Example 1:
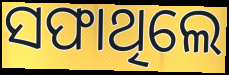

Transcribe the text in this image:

ସଫାଥିଲେ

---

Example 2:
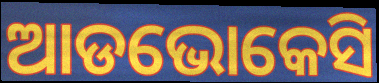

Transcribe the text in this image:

ଆଡଭୋକେସି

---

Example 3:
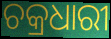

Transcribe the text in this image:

ଚକ୍ରଧାରୀ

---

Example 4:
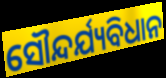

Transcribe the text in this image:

ସୌନ୍ଦର୍ଯ୍ୟବିଧାନ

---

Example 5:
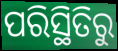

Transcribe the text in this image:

ପରିସ୍ଥିତିରୁ